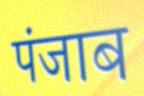
पंजाब